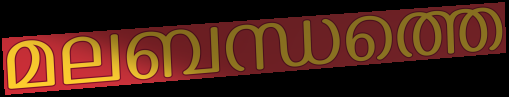
മലബന്ധത്തെ